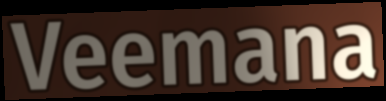
Veemana